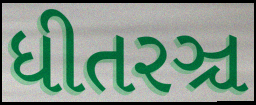
ધીતરઞ્ચ